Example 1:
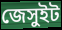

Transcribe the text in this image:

জেসুইট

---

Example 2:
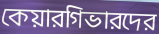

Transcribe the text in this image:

কেয়ারগিভারদের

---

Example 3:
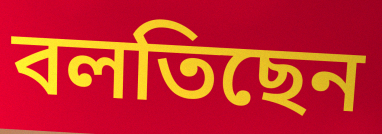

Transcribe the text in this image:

বলতিছেন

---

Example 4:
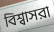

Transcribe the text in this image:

বিশ্বাসরা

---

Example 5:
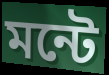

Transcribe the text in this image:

মন্টে